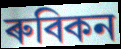
ৰুবিকন